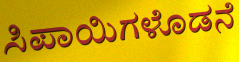
ಸಿಪಾಯಿಗಳೊಡನೆ